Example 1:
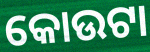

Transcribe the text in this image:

କୋଉଟା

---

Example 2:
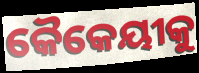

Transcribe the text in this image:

କୈକେୟୀକୁ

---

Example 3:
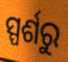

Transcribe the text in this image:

ସ୍ପର୍ଶରୁ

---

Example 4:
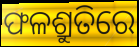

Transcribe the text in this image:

ଫଳଶ୍ରୁତିରେ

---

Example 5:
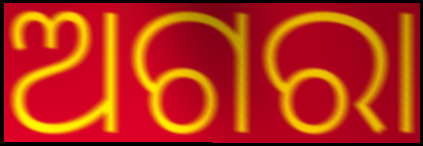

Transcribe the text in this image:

ଅଗରା